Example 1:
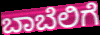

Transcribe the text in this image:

ಬಾಬೆಲಿಗೆ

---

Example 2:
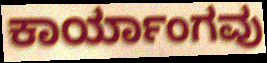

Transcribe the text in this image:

ಕಾರ್ಯಾಂಗವು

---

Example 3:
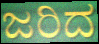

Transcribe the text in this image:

ಜರಿದ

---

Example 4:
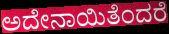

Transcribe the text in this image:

ಅದೇನಾಯಿತೆಂದರೆ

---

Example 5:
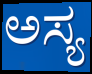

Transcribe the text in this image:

ಅಸ್ಯ